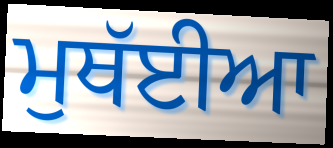
ਮੁਥੱਈਆ